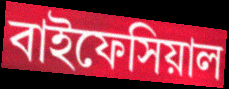
বাইফেসিয়াল